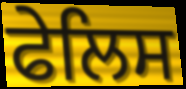
ਫੇਲਿਸ